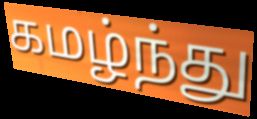
கமழ்ந்து